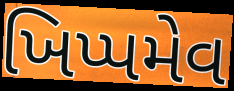
ખિપ્પમેવ